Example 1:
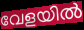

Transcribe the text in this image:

വേളയിൽ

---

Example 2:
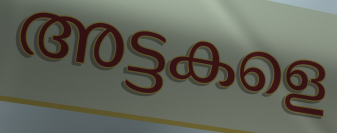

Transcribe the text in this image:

അട്ടകളെ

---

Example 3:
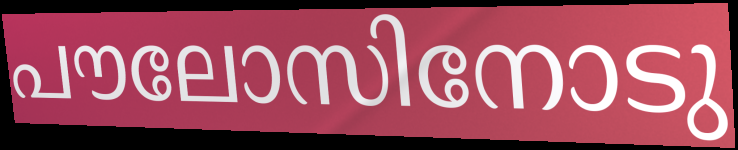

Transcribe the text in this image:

പൗലോസിനോടു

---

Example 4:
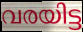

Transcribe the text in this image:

വരയിട്ട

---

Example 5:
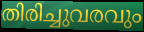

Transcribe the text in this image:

തിരിച്ചുവരവും